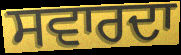
ਸਵਾਰਦਾ